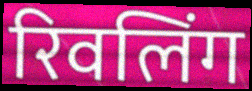
रिवलिंग